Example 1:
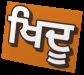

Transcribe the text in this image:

ਖਿਦੂ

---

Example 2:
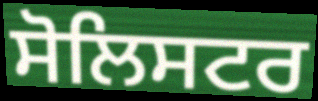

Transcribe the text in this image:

ਸੋਲਿਸਟਰ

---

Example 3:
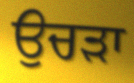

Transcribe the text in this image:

ਉਚੜਾ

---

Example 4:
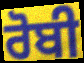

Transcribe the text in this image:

ਰੋਬੀ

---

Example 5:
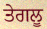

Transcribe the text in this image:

ਤੇਗਲੂ